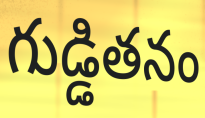
గుడ్డితనం